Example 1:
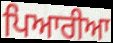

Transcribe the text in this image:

ਪਿਆਰੀਆ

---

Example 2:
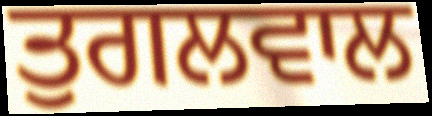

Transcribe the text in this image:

ਤੁਗਲਵਾਲ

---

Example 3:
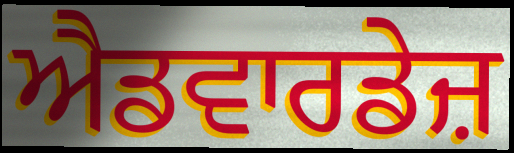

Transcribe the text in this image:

ਐਡਵਾਰਡੇਜ਼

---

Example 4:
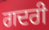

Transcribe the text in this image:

ਗਦਰੀ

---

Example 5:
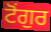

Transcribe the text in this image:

ਟੋਂਗੁਰ